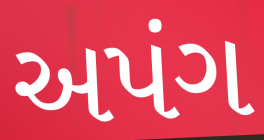
અપંગ